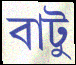
বাটু